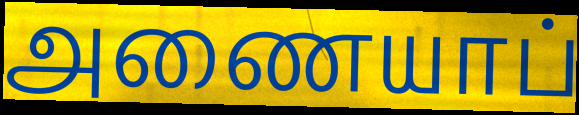
அணையாப்